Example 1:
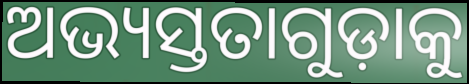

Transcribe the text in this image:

ଅଭ୍ୟସ୍ତତାଗୁଡ଼ାକୁ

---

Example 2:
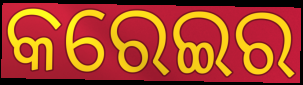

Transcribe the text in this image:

କରେଇର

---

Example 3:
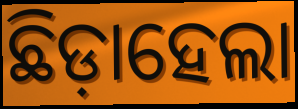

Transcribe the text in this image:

ଛିଡ଼ାହେଲା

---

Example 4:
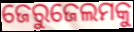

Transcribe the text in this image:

ଜେରୁଜେଲମକୁ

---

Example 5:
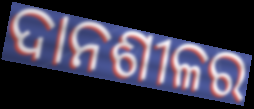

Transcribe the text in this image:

ଦାନଶୀଳର